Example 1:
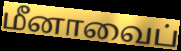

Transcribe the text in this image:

மீனாவைப்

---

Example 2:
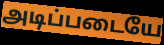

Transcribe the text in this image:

அடிப்படையே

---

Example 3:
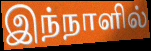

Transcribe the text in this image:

இந்நாளில்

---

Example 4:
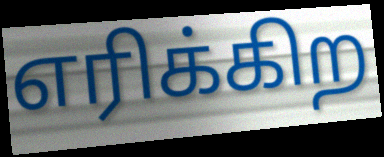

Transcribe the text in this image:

எரிக்கிற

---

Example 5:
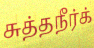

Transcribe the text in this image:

சுத்தநீர்க்